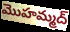
మొహమ్మద్